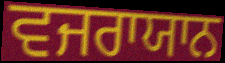
ਵਜਰਾਯਾਨ